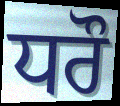
ਧਰੌ